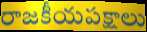
రాజకీయపక్షాలు